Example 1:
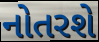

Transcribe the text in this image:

નોતરશે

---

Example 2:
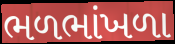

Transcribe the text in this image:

ભળભાંખળા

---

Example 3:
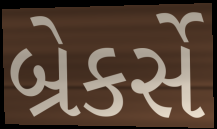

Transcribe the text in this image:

બ્રેકર્સે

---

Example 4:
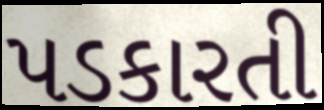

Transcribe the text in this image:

પડકારતી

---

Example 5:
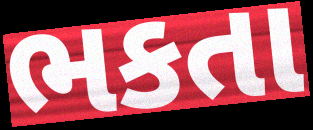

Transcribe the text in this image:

ભકતા